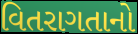
વિતરાગતાનો